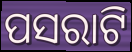
ପସରାଟି